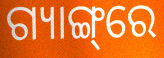
ଗ୍ୟାଙ୍ଗ୍‌ରେ